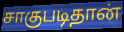
சாகுபடிதான்